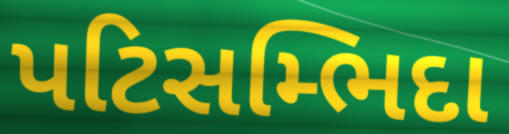
પટિસમ્ભિદા